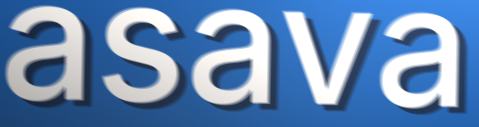
asava